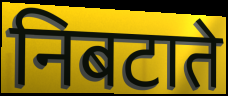
निबटाते